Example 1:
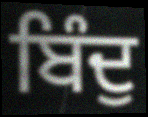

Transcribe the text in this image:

ਬਿੰਦੁ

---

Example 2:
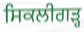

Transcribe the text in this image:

ਸਿਕਲੀਗੜ੍ਹ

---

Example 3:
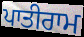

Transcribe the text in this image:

ਪਾਤੀਰਾਮ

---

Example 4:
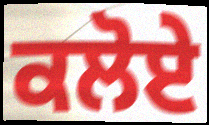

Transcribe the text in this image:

ਕਲੋਏ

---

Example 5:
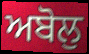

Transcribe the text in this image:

ਅਬੋਲੁ